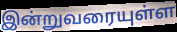
இன்றுவரையுள்ள